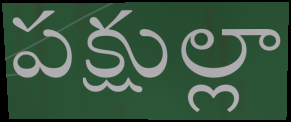
పక్షుల్లా